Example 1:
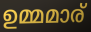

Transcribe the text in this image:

ഉമ്മമാര്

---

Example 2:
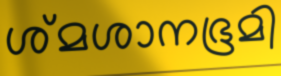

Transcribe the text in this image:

ശ്മശാനഭൂമി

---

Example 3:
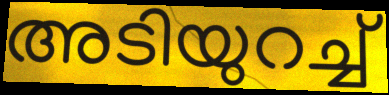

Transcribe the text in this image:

അടിയുറച്ച്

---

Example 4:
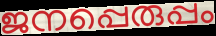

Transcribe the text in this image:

ജനപ്പെരുപ്പം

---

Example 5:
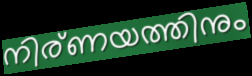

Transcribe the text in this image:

നിര്ണയത്തിനും